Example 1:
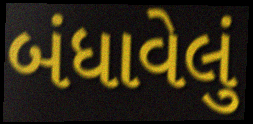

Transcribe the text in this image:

બંધાવેલું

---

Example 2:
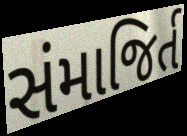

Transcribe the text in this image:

સંમાજિર્ત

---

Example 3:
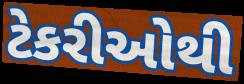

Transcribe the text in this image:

ટેકરીઓથી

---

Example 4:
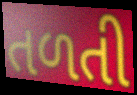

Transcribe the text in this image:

તળતી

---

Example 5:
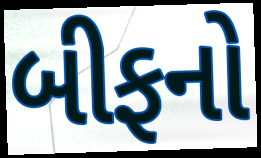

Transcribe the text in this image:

બીફનો